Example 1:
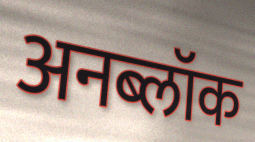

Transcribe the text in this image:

अनब्लॉक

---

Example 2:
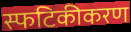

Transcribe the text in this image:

स्फटिकीकरण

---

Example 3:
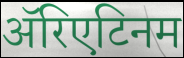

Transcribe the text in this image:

ॲरिएटिनम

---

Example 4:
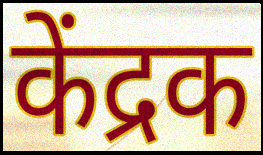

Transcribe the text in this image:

केंद्रक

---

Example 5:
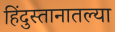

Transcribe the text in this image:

हिंदुस्तानातल्या